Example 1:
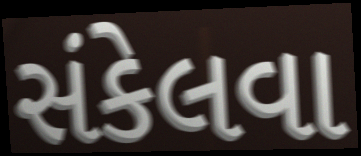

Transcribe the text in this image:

સંકેલવા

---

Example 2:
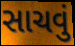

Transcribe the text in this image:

સાચવું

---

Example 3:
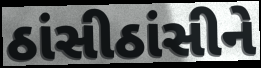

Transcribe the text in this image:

ઠાંસીઠાંસીને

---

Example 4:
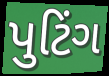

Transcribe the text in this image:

પુટિંગ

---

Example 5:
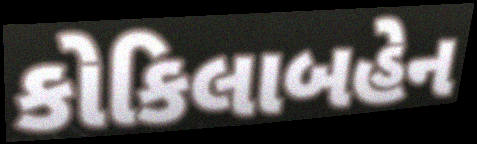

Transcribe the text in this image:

કોકિલાબહેન